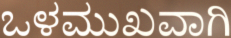
ಒಳಮುಖವಾಗಿ